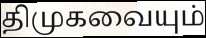
திமுகவையும்